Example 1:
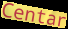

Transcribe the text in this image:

Centar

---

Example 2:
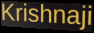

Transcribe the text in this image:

Krishnaji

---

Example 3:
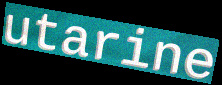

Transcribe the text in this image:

utarine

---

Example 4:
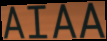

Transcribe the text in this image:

AIAA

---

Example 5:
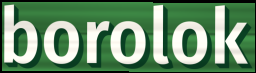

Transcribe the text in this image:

borolok